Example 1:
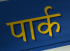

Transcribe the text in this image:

पार्क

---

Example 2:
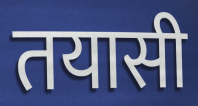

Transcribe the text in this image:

तयासी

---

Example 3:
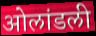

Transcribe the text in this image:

ओलांडली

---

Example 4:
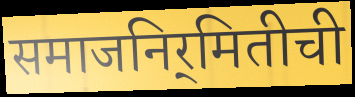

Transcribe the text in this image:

समाजनिर्मितीची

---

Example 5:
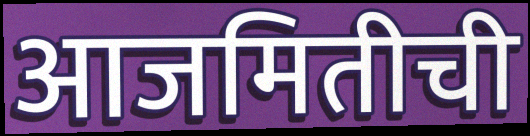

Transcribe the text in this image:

आजमितीची